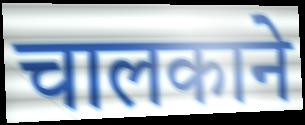
चालकाने